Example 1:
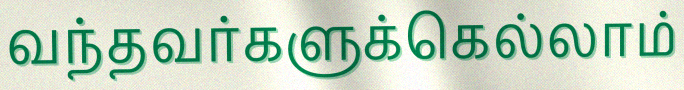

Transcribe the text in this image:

வந்தவர்களுக்கெல்லாம்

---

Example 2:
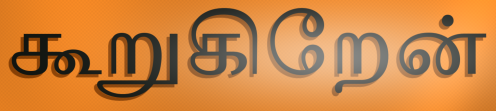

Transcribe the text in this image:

கூறுகிறேன்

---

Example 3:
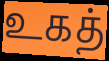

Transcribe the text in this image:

உகத்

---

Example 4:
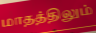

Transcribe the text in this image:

மாதத்திலும்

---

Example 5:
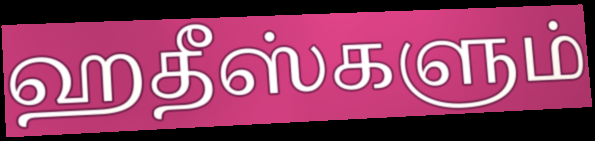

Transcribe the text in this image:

ஹதீஸ்களும்